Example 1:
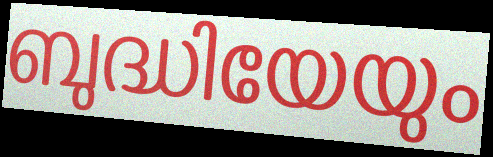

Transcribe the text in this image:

ബുദ്ധിയേയും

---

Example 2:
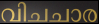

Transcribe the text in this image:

വിചചാര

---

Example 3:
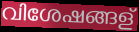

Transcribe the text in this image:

വിശേഷങ്ങള്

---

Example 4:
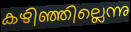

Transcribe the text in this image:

കഴിഞ്ഞില്ലെന്നു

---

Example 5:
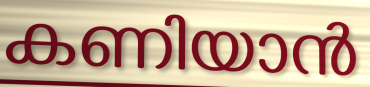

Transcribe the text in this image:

കണിയാൻ